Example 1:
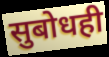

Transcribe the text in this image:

सुबोधही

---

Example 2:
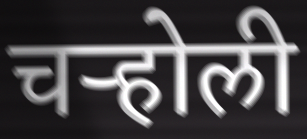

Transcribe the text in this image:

चऱ्होली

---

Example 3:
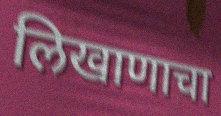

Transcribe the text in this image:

लिखाणाचा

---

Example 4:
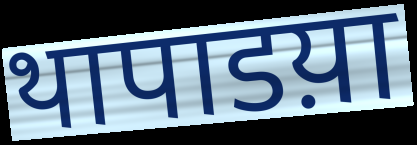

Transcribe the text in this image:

थापाडय़ा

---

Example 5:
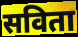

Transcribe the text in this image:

सविता